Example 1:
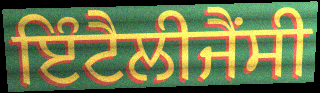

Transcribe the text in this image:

ਇੰਟੈਲੀਜੈਂਸੀ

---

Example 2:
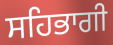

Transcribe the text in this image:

ਸਹਿਭਾਗੀ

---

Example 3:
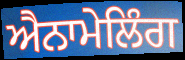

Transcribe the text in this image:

ਐਨਾਮੇਲਿੰਗ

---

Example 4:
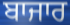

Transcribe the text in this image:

ਬਾਜਾਰ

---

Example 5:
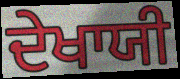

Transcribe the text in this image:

ਦੇਖਾਯੀ